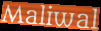
Maliwal